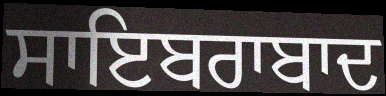
ਸਾਇਬਰਾਬਾਦ